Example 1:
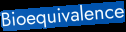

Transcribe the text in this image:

Bioequivalence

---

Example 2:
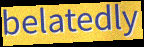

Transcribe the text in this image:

belatedly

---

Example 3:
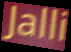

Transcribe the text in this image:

Jalli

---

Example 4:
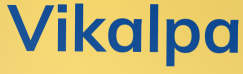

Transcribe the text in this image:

Vikalpa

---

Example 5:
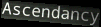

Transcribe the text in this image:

Ascendancy